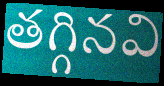
తగ్గినవి